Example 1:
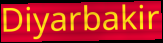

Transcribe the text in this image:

Diyarbakir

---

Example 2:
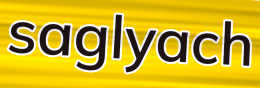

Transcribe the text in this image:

saglyach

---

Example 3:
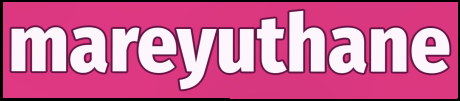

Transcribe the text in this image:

mareyuthane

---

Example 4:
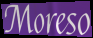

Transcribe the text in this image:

Moreso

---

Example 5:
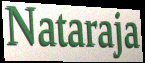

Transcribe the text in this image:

Nataraja